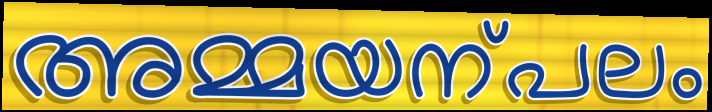
അമ്മയന്പലം